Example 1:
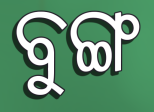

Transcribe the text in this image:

ବୁଙ୍ଗ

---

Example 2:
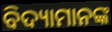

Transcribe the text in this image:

ବିଦ୍ୟାମାନଙ୍କ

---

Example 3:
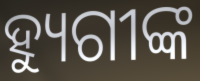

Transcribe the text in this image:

ହ୍ୟୁଗୀଙ୍କ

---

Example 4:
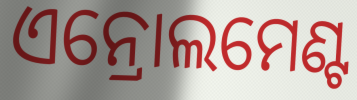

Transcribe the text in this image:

ଏନ୍ରୋଲମେଣ୍ଟ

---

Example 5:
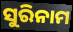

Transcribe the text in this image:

ସୁରିନାମ